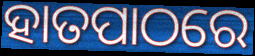
ହାତପାଠରେ